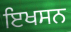
ਇਖਸਨ